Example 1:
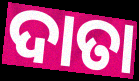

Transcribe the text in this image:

ଦାତା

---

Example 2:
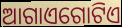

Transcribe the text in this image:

ଆଗାଏଗୋଟିଏ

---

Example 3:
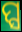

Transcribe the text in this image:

ପ୍ସ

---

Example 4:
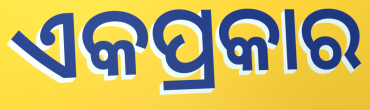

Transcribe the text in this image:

ଏକପ୍ରକାର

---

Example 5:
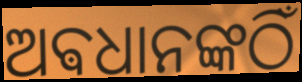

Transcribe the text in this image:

ଅଵଧାନଙ୍କଠିଁ